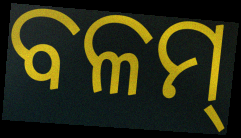
ବଳମ୍